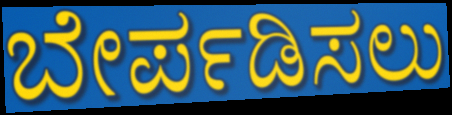
ಬೇರ್ಪಡಿಸಲು